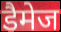
डैमेज